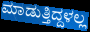
ಮಾಡುತ್ತಿದ್ದಳಲ್ಲ